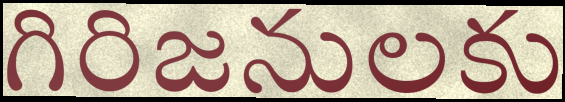
గిరిజనులకు